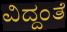
ವಿದ್ದಂತೆ